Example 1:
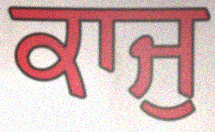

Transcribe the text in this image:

ਕਾਜੁ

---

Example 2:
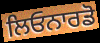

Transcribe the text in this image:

ਲਿਓਨਾਰਡੋ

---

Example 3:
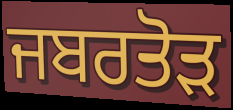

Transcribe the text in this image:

ਜਬਰਤੋੜ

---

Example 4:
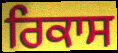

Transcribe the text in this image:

ਰਿਕਾਸ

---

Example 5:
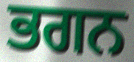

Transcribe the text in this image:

ਭਗਨ